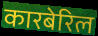
कारबेरिल